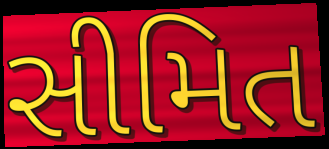
સીમિત